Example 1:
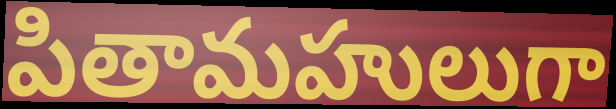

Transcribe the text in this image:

పితామహులుగా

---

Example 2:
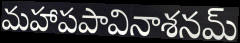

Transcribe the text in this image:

మహాపపావినాశనమ్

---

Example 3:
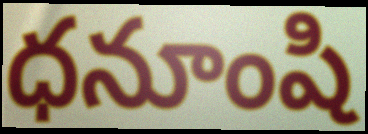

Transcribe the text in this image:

ధనూంషి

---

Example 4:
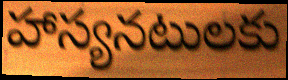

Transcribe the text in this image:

హాస్యనటులకు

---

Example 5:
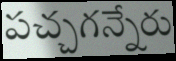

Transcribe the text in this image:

పచ్చగన్నేరు